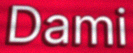
Dami